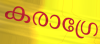
കരാഗ്രേ